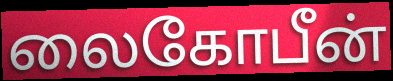
லைகோபீன்